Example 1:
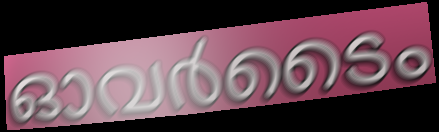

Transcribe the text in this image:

ഓവർടൈം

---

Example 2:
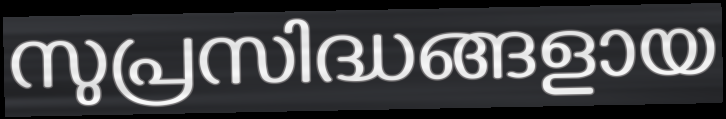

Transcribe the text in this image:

സുപ്രസിദ്ധങ്ങളായ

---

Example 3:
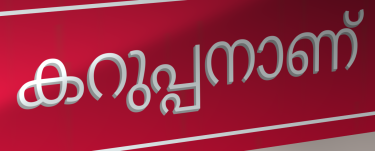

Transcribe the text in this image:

കറുപ്പനാണ്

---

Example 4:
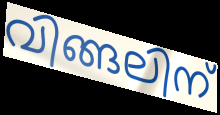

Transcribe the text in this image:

വിങ്ങലിന്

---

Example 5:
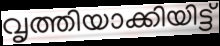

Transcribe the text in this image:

വൃത്തിയാക്കിയിട്ട്